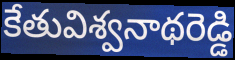
కేతువిశ్వనాథరెడ్డి